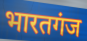
भारतगंज